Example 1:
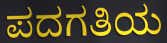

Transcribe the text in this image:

ಪದಗತಿಯ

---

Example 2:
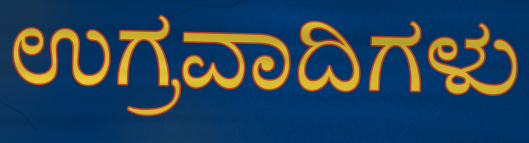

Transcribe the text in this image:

ಉಗ್ರವಾದಿಗಳು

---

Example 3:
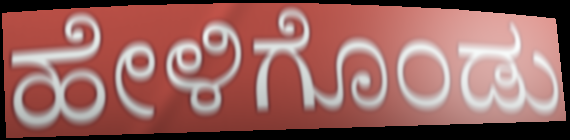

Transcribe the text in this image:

ಹೇಳಿಗೊಂಡು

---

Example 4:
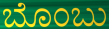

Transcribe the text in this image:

ಬೊಂಬು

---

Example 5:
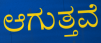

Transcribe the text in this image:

ಆಗುತ್ತವೆ